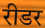
रीडर